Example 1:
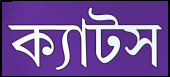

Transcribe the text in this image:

ক্যাটস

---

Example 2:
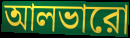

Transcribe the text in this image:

আলভারো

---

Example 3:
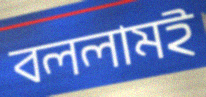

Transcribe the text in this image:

বললামই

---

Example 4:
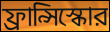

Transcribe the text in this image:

ফ্রান্সিস্কোর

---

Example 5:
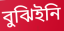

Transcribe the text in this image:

বুঝিইনি